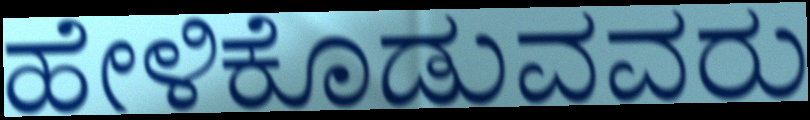
ಹೇಳಿಕೊಡುವವರು